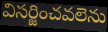
విసర్జించవలెను